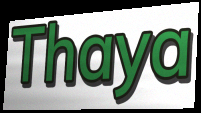
Thaya